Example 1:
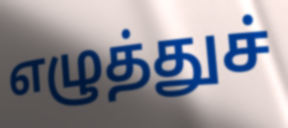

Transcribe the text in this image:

எழுத்துச்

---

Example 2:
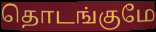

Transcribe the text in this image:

தொடங்குமே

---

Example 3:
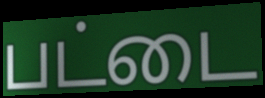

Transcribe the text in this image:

பட்டை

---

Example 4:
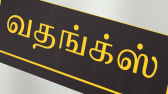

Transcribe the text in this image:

வதங்க்ஸ்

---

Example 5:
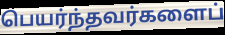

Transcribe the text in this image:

பெயர்ந்தவர்களைப்